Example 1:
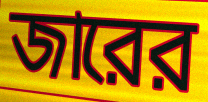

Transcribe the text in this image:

জারের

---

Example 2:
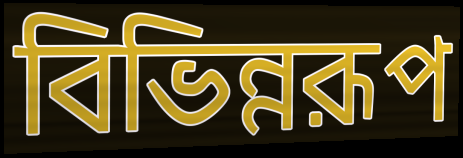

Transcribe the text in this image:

বিভিন্নরূপ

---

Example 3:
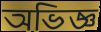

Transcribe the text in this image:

অভিজ্ঞ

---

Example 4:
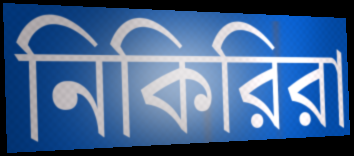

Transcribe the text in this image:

নিকিরিরা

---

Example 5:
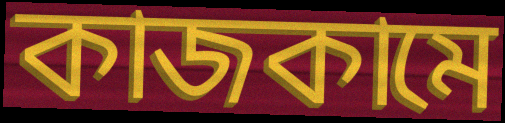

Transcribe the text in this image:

কাজকামে